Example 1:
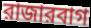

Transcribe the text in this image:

রাজারবাগ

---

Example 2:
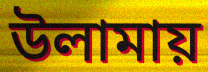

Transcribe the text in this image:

উলামায়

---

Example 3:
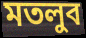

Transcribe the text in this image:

মতলুব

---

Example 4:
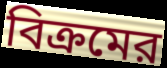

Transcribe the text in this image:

বিক্রমের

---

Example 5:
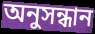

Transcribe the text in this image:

অনুসন্ধান